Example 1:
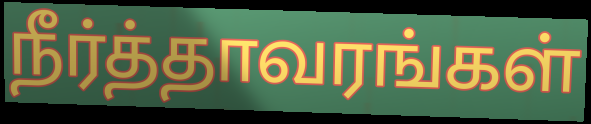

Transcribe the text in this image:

நீர்த்தாவரங்கள்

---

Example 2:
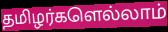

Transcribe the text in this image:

தமிழர்களெல்லாம்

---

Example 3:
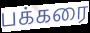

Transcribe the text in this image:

பக்கரை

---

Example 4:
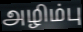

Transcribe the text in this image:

அழிம்பு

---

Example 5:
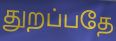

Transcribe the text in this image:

துறப்பதே